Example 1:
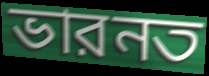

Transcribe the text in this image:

ভারনত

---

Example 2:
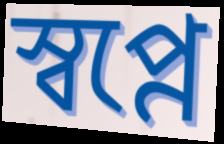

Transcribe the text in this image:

স্বপ্নে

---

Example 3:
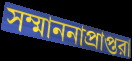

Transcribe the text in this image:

সম্মাননাপ্রাপ্তরা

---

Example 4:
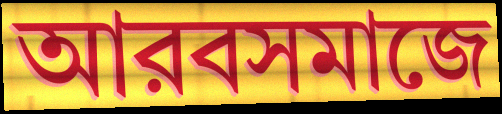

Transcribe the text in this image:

আরবসমাজে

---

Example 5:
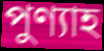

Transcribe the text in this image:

পুণ্যাহ